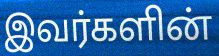
இவர்களின்